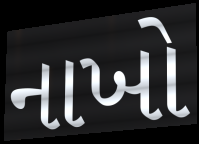
નાખો